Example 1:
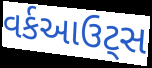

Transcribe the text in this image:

વર્કઆઉટ્સ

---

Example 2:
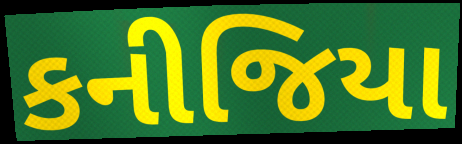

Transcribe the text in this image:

કનીજિયા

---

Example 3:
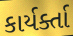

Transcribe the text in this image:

કાર્યર્ક્તા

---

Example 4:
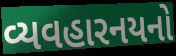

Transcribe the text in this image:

વ્યવહારનયનો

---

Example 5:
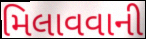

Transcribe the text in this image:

મિલાવવાની